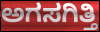
ಅಗಸಗಿತ್ತಿ